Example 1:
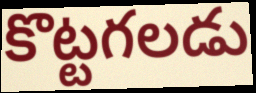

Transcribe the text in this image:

కొట్టగలడు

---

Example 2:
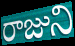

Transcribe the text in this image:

రాజుని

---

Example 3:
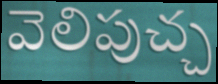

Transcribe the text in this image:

వెలిపుచ్చ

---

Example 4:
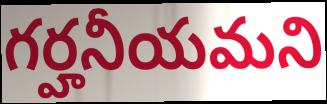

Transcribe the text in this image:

గర్హనీయమని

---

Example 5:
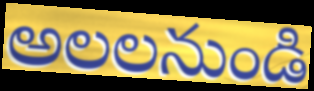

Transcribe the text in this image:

అలలనుండి